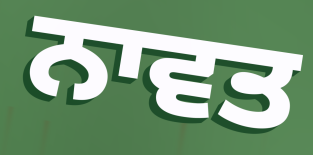
ਨਾਵਤ